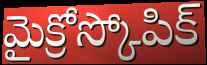
మైక్రోస్కోపిక్